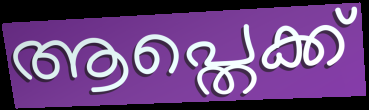
ആപ്തെക്ക്